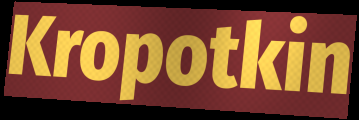
Kropotkin